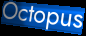
Octopus